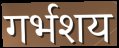
गर्भशय